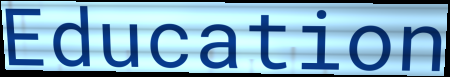
Education